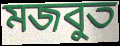
মজবুত